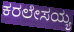
ಕರಲೇಸಯ್ಯ